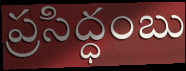
ప్రసిద్ధంబు